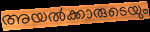
അയൽക്കാരുടെയും